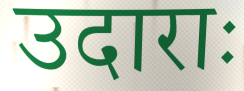
उदाराः